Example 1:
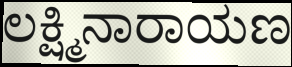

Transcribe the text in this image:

ಲಕ್ಷ್ಮಿನಾರಾಯಣ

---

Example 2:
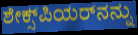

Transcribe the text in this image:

ಶೇಕ್ಸ್‌ಪಿಯರ್‌ನನ್ನು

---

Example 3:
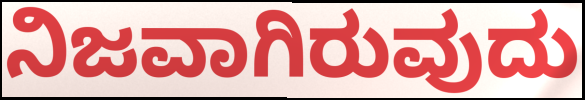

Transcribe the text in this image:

ನಿಜವಾಗಿರುವುದು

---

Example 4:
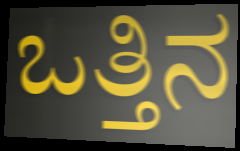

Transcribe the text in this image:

ಒತ್ತಿನ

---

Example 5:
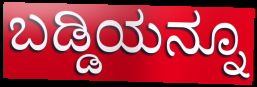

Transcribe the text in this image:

ಬಡ್ಡಿಯನ್ನೂ